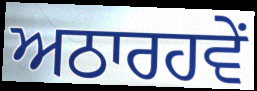
ਅਠਾਰਹਵੇਂ